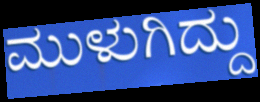
ಮುಳುಗಿದ್ದು